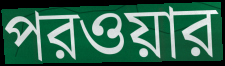
পরওয়ার